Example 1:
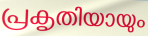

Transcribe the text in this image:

പ്രകൃതിയായും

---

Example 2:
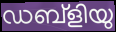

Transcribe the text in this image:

ഡബ്ളിയു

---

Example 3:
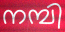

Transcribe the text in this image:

നമ്പി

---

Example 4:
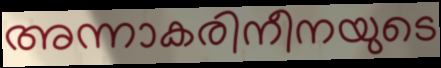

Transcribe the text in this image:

അന്നാകരിനീനയുടെ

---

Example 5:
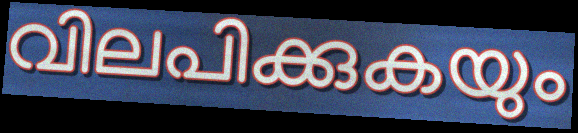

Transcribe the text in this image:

വിലപിക്കുകയും